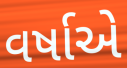
વર્ષાએ